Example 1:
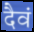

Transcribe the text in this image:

दैवं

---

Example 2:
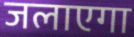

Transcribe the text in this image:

जलाएगा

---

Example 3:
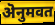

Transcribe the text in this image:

ऄनुमवत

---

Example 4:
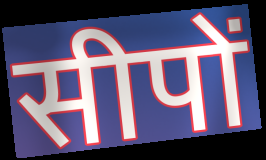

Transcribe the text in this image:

सीपों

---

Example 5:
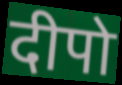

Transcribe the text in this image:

दीपो